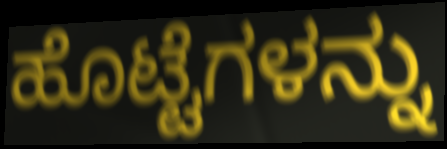
ಹೊಟ್ಟೆಗಳನ್ನು